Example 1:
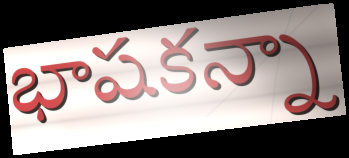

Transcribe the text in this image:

భాషకన్నా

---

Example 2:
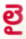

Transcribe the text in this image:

లై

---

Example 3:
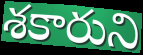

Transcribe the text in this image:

శకారుని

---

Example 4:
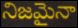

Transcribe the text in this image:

నిజమైనా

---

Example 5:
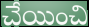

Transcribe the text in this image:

చేయించి